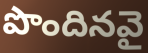
పొందినవై